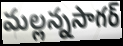
మల్లన్నసాగర్